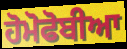
ਹੋਮੋਫੋਬੀਆ